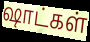
ஷாட்கள்